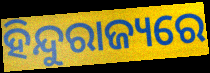
ହିନ୍ଦୁରାଜ୍ୟରେ